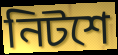
নিটশে